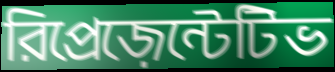
রিপ্রেজ়েন্টেটিভ